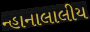
ન્હાનાલાલીય